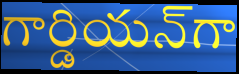
గార్డియన్‌గా